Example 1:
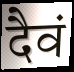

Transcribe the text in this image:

दैवं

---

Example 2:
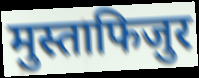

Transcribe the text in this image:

मुस्ताफिजुर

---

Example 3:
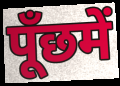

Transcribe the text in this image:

पूँछमें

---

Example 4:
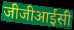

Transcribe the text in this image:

जीजीआईसी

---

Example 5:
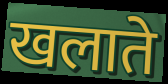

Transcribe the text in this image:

खलाते